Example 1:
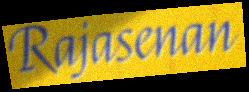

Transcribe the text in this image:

Rajasenan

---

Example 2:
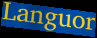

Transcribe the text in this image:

Languor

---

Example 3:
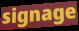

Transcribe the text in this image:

signage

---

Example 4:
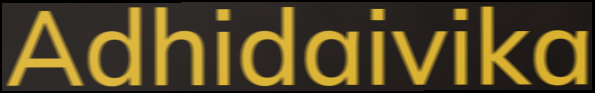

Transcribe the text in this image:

Adhidaivika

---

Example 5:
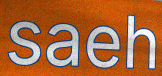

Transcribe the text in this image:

saeh